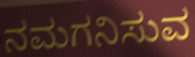
ನಮಗನಿಸುವ